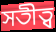
সতীত্ব